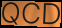
QCD